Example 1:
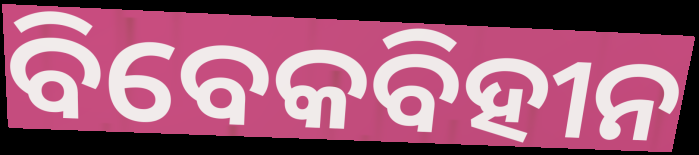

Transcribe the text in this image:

ବିବେକବିହୀନ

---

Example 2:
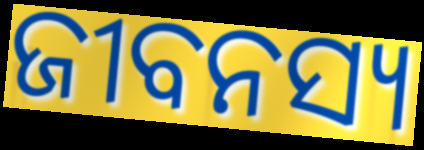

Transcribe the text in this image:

ଜୀବନସ୍ୟ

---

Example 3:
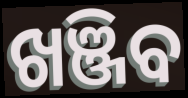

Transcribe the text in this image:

ଖଞ୍ଜିବ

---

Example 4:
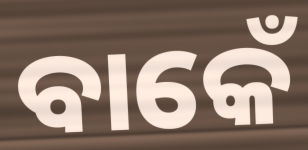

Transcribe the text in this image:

ବାକେଁ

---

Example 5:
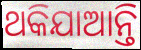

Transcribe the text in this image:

ଥକିଯାଆନ୍ତି